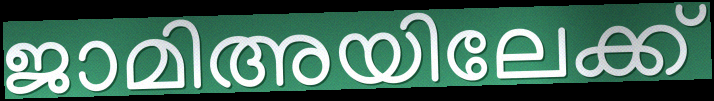
ജാമിഅയിലേക്ക്